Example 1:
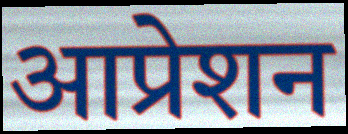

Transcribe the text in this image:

आप्रेशन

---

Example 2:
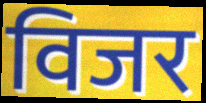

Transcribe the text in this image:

विजर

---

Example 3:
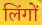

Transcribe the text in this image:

लिंगों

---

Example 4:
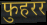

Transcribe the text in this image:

फुहरर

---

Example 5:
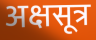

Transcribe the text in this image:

अक्षसूत्र